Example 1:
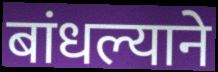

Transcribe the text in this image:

बांधल्याने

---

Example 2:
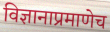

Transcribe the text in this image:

विज्ञानाप्रमाणेच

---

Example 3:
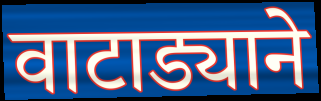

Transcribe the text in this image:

वाटाड्याने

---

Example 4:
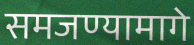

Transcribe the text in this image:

समजण्यामागे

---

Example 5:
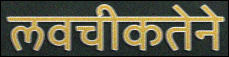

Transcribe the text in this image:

लवचीकतेने